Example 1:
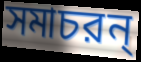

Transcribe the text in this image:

সমাচরন্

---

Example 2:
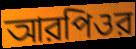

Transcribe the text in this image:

আরপিওর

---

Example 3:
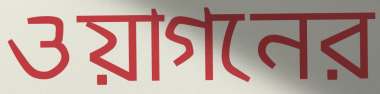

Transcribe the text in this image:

ওয়াগনের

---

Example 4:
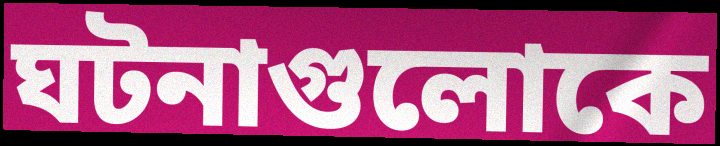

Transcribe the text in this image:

ঘটনাগুলোকে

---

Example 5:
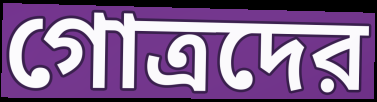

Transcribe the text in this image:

গোত্রদের